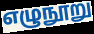
எழுநூறு